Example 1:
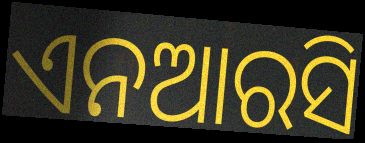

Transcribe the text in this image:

ଏନଆରସି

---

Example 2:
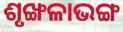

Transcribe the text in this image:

ଶୃଙ୍ଖଳାଭଙ୍ଗ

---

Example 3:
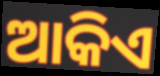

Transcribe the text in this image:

ଆକିଏ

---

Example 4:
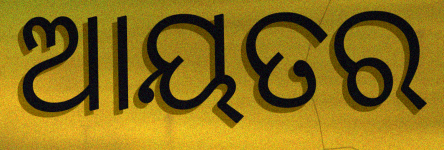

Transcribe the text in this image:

ଆୟତର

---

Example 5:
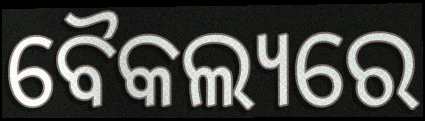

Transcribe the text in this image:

ବୈକଲ୍ୟରେ